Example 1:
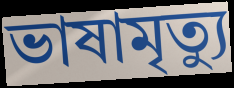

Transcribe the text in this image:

ভাষামৃত্যু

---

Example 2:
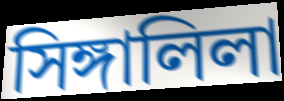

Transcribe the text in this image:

সিঙ্গালিলা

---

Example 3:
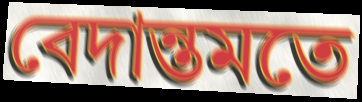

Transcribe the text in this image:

বেদান্তমতে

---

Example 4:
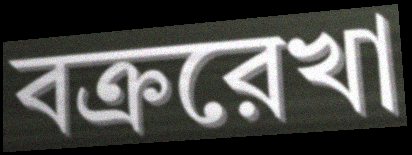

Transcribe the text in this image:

বক্ররেখা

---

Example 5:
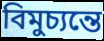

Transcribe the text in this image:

বিমুচ্যন্তে